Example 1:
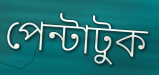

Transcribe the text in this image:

পেন্টাটুক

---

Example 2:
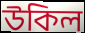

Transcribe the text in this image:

উকিল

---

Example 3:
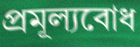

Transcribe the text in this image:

প্ৰমূল্যবোধ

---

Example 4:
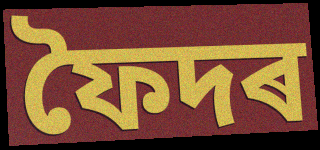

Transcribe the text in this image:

ফৈদৰ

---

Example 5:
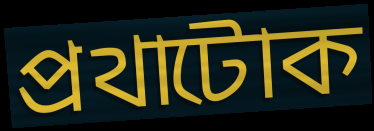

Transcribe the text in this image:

প্ৰথাটোক